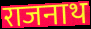
राजनाथ